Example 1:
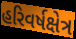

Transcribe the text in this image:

હરિવર્ષક્ષેત્ર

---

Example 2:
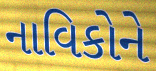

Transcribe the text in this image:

નાવિકોને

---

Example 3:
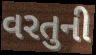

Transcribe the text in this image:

વરતુની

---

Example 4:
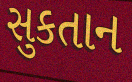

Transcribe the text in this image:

સુકતાન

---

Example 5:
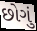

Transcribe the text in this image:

છોગું